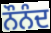
ਨੌਨੰਦ